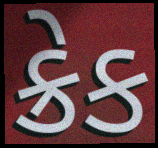
ક્રેક